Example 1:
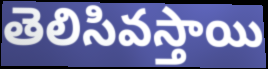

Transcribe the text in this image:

తెలిసివస్తాయి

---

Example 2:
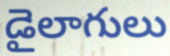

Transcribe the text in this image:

డైలాగులు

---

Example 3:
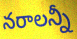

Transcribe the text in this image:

నరాలన్నీ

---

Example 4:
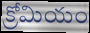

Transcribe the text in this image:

క్రోమియం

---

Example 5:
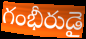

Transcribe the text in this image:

గంభీరుడై